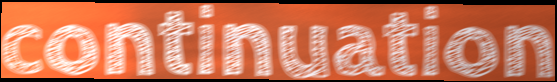
continuation